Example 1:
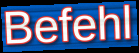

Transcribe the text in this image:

Befehl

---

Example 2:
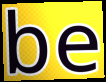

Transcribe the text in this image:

be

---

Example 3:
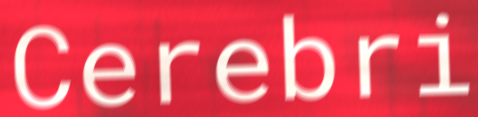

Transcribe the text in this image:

Cerebri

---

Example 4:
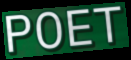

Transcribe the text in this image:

POET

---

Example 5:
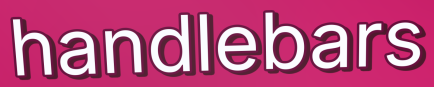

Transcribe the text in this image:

handlebars